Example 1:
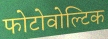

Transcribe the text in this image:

फोटोवोल्टिक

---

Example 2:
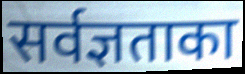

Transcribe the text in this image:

सर्वज्ञताका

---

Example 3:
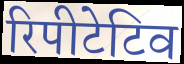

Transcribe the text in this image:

रिपीटेटिव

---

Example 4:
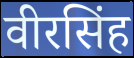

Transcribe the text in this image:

वीरसिंह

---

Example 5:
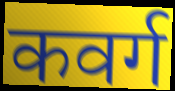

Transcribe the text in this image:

कवर्ग